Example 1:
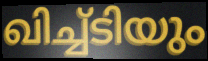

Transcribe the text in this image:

ഖിച്ച്ടിയും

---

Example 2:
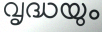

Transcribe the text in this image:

വൃദ്ധയും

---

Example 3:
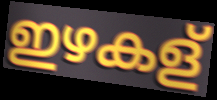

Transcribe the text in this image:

ഇഴകള്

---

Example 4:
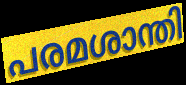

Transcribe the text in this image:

പരമശാന്തി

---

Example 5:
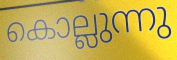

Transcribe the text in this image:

കൊല്ലുന്നു